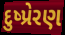
દુષ્પ્રેરણ